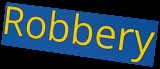
Robbery